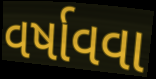
વર્ષાવવા